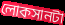
লোকসানটা